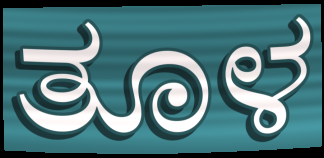
ತೂಳ